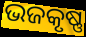
ଭଜକୃଷ୍ଣ